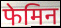
फेमिन